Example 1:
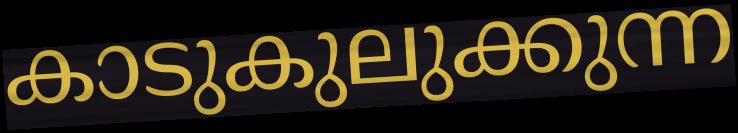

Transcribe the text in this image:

കാടുകുലുക്കുന്ന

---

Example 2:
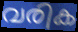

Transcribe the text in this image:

വരിക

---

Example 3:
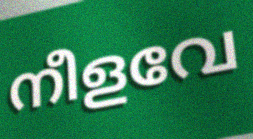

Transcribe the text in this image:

നീളവേ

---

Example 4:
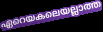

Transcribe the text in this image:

ഏറെയകലെയല്ലാത്ത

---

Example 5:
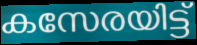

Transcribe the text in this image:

കസേരയിട്ട്